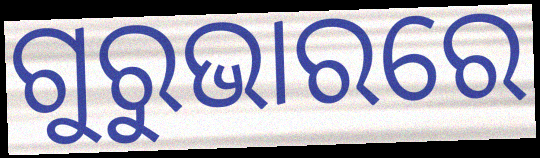
ଗୁରୁଭାରରେ